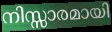
നിസ്സാരമായി